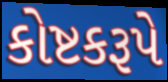
કોષ્ટકરૂપે